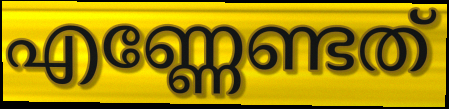
എണ്ണേണ്ടത്